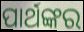
ପାର୍ଥଙ୍କର